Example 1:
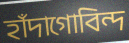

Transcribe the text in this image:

হাঁদাগোবিন্দ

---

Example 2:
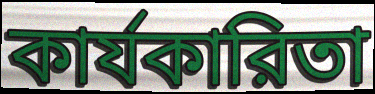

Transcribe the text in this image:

কার্যকারিতা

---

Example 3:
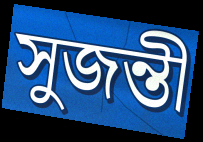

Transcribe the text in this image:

সুজন্তী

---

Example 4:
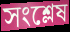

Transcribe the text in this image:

সংশ্লেষ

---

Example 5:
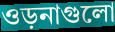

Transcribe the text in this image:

ওড়নাগুলো